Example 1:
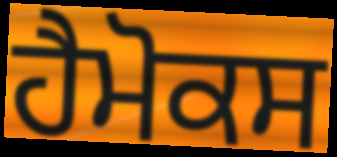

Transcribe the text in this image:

ਹੈਮੋਕਸ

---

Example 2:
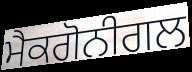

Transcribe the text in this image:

ਮੈਕਗੋਨੀਗਲ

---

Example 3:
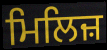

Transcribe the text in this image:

ਮਿਲਿਜ਼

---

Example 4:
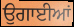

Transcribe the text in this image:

ਉਗਾਈਆਂ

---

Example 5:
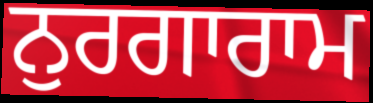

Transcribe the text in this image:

ਨੁਰਗਾਰਾਮ